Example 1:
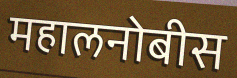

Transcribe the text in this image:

महालनोबीस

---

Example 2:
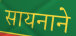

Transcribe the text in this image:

सायनाने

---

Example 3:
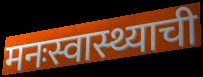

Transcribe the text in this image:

मनःस्वास्थ्याची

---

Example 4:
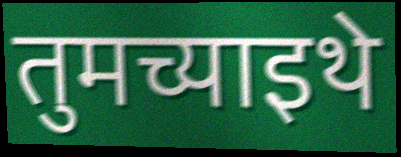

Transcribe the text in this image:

तुमच्याइथे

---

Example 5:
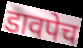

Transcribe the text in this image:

डावपेच